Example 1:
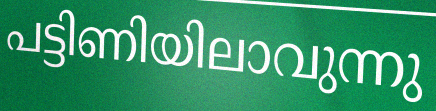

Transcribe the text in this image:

പട്ടിണിയിലാവുന്നു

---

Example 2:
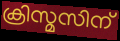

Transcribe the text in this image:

ക്രിസ്മസിന്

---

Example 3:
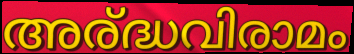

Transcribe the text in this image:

അര്ദ്ധവിരാമം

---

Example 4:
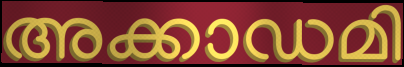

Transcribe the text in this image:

അക്കാഡമി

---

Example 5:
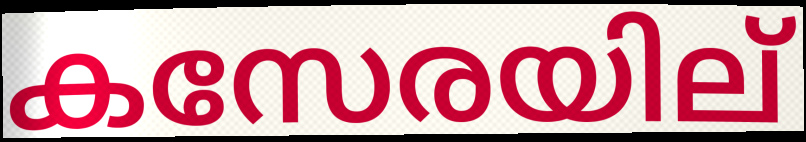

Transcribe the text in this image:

കസേരയില്